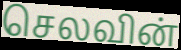
செலவின்